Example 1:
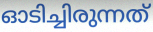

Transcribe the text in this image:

ഓടിച്ചിരുന്നത്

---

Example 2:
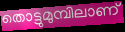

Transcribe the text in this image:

തൊട്ടുമുമ്പിലാണ്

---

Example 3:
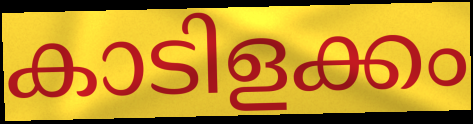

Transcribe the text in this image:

കാടിളക്കം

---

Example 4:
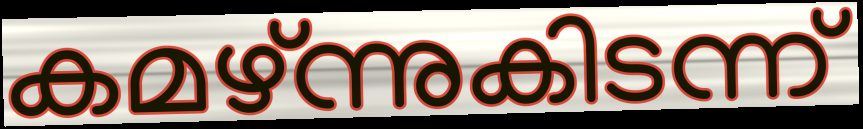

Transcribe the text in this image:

കമഴ്ന്നുകിടന്ന്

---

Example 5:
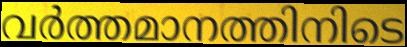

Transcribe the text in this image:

വർത്തമാനത്തിനിടെ